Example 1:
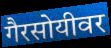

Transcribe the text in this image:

गैरसोयीवर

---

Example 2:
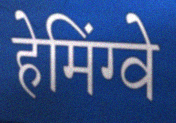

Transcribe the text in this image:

हेमिंग्वे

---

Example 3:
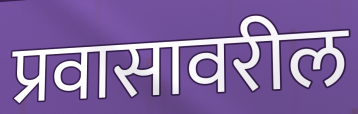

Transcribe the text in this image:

प्रवासावरील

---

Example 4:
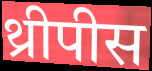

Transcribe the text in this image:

थ्रीपीस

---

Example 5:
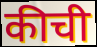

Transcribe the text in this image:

कीची